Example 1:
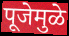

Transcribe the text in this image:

पूजेमुळे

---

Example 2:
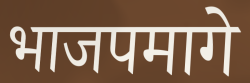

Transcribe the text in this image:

भाजपमागे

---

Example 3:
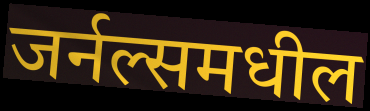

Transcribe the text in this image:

जर्नल्समधील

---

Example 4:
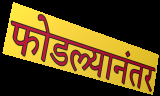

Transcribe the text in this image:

फोडल्यानंतर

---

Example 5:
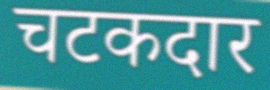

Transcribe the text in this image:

चटकदार